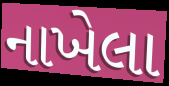
નાખેલા